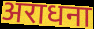
अराधना